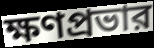
ক্ষণপ্রভার